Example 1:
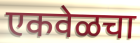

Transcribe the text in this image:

एकवेळचा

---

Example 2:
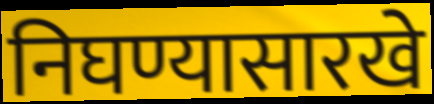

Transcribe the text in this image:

निघण्यासारखे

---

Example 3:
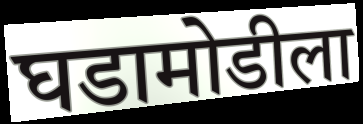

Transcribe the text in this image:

घडामोडीला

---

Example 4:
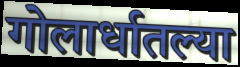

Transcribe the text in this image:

गोलार्धातल्या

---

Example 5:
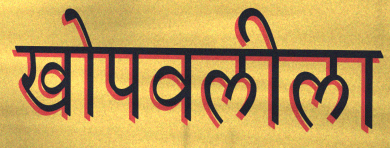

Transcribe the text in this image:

खोपवलीला